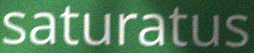
saturatus